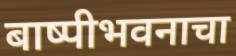
बाष्पीभवनाचा